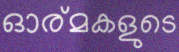
ഓര്മകളുടെ